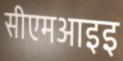
सीएमआइइ